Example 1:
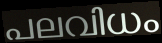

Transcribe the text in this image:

പലവിധം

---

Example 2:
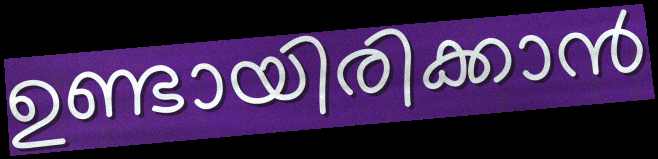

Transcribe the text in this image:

ഉണ്ടായിരിക്കാൻ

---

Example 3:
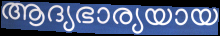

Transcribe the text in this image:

ആദ്യഭാര്യയായ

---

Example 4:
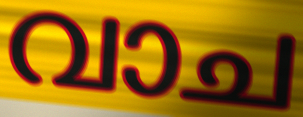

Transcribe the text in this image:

വാച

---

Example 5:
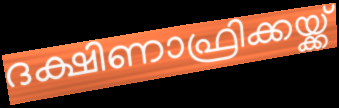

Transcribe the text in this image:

ദക്ഷിണാഫ്രിക്കയ്ക്ക്